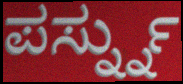
ಪರ್ಸ್ನ್ನು